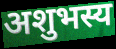
अशुभस्य